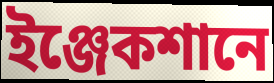
ইঞ্জেকশানে